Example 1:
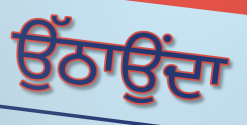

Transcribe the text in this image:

ਉੱਠਾਉਂਦਾ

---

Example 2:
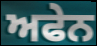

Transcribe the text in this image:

ਅਫੇਨ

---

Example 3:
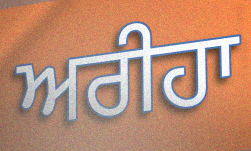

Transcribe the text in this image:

ਅਰੀਹਾ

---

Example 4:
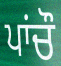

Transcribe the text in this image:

ਪਾਂਚੌ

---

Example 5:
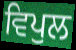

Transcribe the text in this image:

ਵਿਪੁਲ